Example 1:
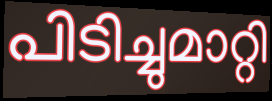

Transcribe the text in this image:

പിടിച്ചുമാറ്റി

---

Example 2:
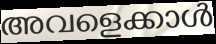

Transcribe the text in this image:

അവളെക്കാൾ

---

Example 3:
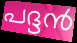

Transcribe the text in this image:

പദ്ദൻ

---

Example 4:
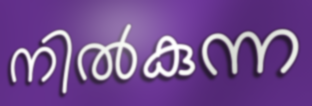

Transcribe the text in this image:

നിൽകുന്ന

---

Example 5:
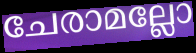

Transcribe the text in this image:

ചേരാമല്ലോ